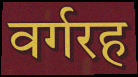
वर्गरह